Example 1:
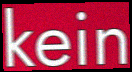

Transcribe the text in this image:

kein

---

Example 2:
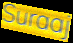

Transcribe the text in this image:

Suraaj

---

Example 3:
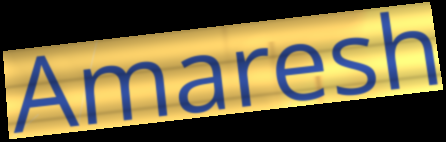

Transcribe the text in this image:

Amaresh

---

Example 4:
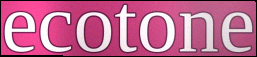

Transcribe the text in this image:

ecotone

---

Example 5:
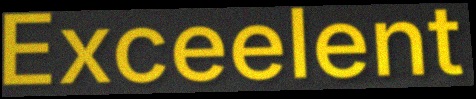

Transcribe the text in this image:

Exceelent